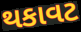
થકાવટ